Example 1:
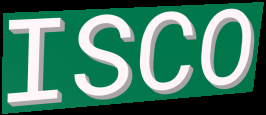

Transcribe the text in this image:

ISCO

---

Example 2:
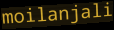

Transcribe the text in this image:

moilanjali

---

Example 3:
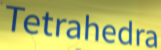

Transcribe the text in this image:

Tetrahedra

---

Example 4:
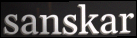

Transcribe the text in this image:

sanskar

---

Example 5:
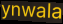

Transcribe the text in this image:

ynwala